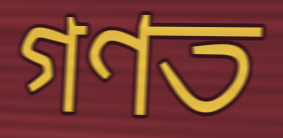
গণত